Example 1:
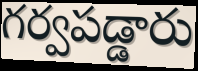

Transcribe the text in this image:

గర్వపడ్డారు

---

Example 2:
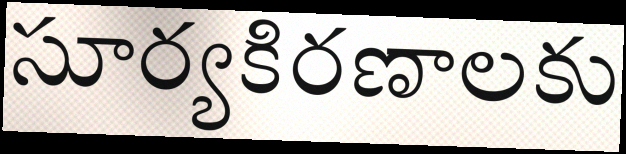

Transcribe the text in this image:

సూర్యకిరణాలకు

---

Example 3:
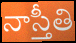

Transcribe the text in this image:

నాస్తీతి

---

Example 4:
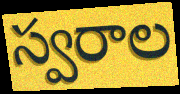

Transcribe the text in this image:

స్వరాల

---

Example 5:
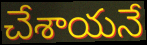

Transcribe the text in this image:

చేశాయనే